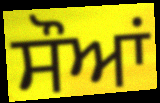
ਸੌਆਂ